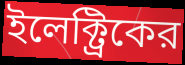
ইলেক্ট্রিকের